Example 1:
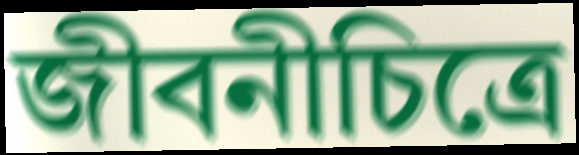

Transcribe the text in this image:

জীবনীচিত্রে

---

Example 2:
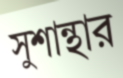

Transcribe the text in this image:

সুশান্থার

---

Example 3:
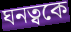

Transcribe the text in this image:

ঘনত্বকে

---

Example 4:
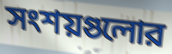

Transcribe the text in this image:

সংশয়গুলোর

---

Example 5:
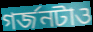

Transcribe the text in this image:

গর্জনটাও